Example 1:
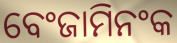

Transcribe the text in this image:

ବେଂଜାମିନଂକ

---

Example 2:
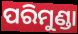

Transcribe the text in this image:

ପରିମୁଣ୍ଡା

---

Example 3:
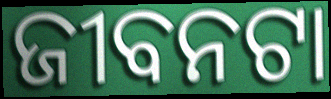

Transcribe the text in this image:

ଜୀବନଟା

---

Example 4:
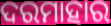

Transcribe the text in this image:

ଦରମାହାର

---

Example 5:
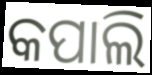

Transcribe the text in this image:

କପାଲି